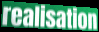
realisation